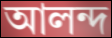
আলন্দ